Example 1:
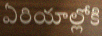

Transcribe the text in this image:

ఏరియాల్లోకి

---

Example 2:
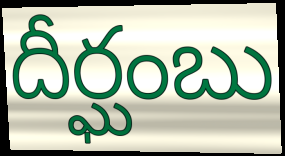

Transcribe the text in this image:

దీర్ఘంబు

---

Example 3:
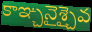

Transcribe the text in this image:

కాఞ్చనైశ్చైవ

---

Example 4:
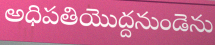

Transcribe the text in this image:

అధిపతియొద్దనుండెను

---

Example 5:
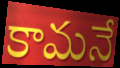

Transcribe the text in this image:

కామనే